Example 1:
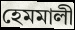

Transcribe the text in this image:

হেমমালী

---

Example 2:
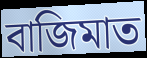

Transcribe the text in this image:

বাজিমাত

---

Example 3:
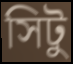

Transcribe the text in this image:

সিটু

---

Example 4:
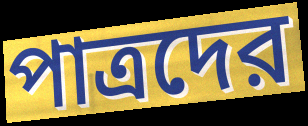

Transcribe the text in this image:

পাত্রদের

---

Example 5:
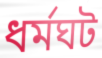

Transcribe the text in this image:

ধর্মঘট